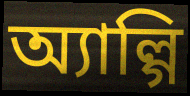
অ্যাল্গি